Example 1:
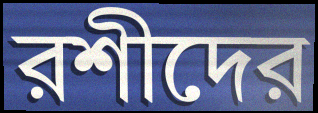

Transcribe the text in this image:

রশীদের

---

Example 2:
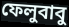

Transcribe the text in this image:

ফেলুবাবু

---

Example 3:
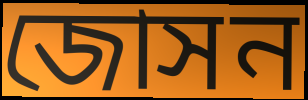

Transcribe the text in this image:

জোসন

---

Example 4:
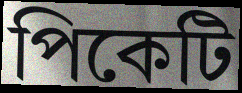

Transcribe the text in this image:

পিকেটি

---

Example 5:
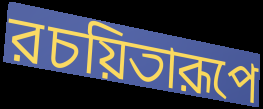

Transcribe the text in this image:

রচয়িতারূপে